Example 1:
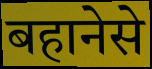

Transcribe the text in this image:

बहानेसे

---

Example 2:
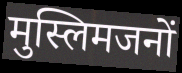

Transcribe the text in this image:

मुस्लिमजनों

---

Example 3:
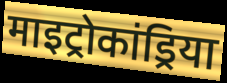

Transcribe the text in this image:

माइट्रोकांड्रिया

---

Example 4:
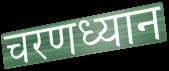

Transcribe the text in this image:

चरणध्यान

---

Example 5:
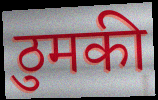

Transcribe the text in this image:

ठुमकी